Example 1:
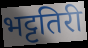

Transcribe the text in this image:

भट्टतिरी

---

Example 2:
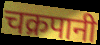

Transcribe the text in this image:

चक्रपानी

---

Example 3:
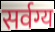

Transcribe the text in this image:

सर्वग्य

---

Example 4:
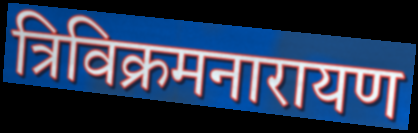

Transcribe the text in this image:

त्रिविक्रमनारायण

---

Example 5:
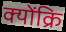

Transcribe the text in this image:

क्योंक्रि